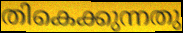
തികെക്കുന്നതു